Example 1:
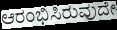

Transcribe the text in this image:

ಆರಂಭಿಸಿರುವುದೇ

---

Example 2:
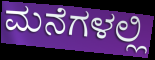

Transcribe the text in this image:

ಮನೆಗಳಲ್ಲಿ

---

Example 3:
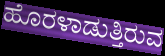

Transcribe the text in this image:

ಹೊರಳಾಡುತ್ತಿರುವ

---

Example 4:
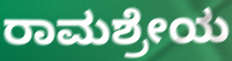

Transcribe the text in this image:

ರಾಮಶ್ರೇಯ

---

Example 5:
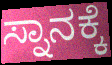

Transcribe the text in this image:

ಸ್ನಾನಕ್ಕೆ